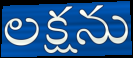
లక్షను